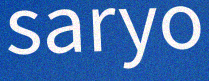
saryo